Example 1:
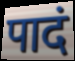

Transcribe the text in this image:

पादं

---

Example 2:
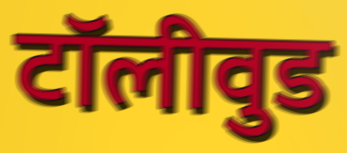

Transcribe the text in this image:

टॉलीवुड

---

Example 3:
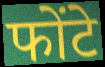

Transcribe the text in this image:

फोंटे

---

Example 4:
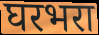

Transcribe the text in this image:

घरभरा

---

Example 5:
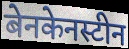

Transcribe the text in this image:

बेनकेनस्टीन